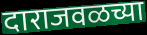
दाराजवळच्या